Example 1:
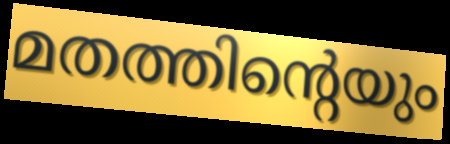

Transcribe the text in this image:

മതത്തിന്റെയും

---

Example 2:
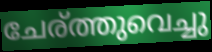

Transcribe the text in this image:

ചേര്ത്തുവെച്ചു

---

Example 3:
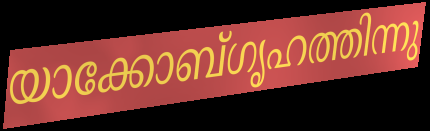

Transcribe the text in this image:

യാക്കോബ്ഗൃഹത്തിന്നു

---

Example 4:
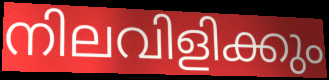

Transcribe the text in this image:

നിലവിളിക്കും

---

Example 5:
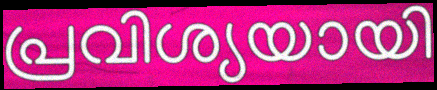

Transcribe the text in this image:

പ്രവിശ്യയായി